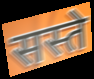
सस्ते